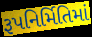
રૂપનિર્મિતિમાં